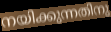
നയിക്കുന്നതിനു